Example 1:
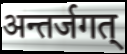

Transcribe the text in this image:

अन्तर्जगत्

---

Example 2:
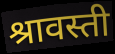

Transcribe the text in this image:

श्रावस्ती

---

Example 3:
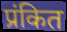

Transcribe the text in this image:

प्रंकित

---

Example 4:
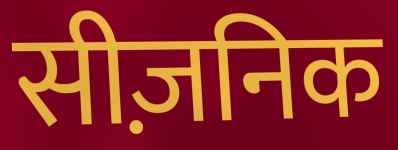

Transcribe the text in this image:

सीज़निक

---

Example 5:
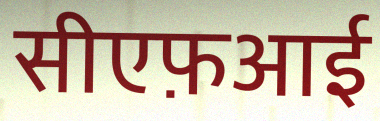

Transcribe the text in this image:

सीएफ़आई